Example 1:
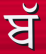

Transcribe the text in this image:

ਬੱ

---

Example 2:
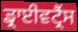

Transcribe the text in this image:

ਡ੍ਰਾਈਵਟ੍ਰੈਂਸ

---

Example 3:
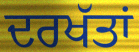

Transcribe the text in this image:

ਦਰਖੱਤਾਂ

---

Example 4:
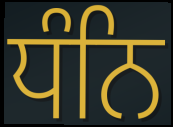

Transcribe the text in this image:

ਧੰਨਿ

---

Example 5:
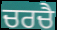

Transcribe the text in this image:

ਚਰਚੈ